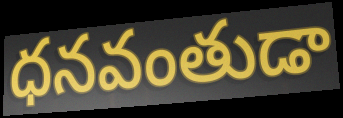
ధనవంతుడా